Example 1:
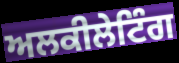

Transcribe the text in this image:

ਅਲਕੀਲੇਟਿੰਗ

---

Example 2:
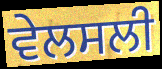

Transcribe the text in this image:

ਵੇਲਸਲੀ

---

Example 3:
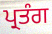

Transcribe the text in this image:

ਪ੍ਰਤੰਗ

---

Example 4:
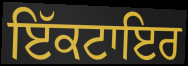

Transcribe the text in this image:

ਇੱਕਟਾਇਰ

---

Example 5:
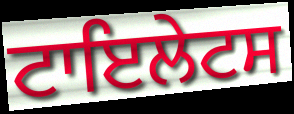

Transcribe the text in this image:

ਟਾਇਲੇਟਸ